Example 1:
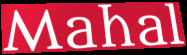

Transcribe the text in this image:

Mahal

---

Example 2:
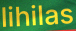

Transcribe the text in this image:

lihilas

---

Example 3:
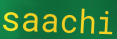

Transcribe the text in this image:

saachi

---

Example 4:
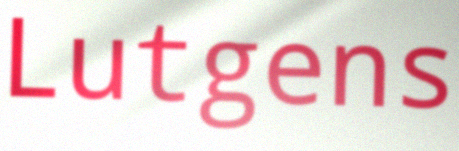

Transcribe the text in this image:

Lutgens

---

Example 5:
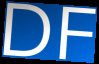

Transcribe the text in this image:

DF